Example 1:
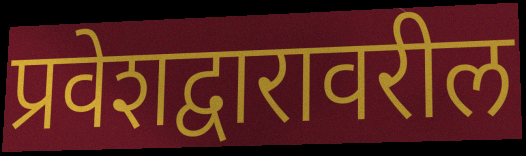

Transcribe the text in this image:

प्रवेशद्वारावरील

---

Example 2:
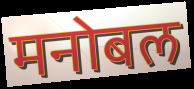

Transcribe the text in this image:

मनोबल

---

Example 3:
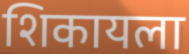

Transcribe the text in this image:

शिकायला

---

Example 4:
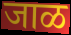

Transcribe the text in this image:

जाळ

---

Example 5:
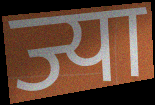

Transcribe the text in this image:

ज्या